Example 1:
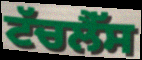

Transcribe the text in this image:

ਟੱਚਲੈੱਸ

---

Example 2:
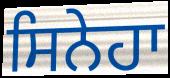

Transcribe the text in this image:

ਸਿਨੇਹਾ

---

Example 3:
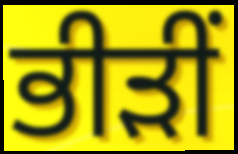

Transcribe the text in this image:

ਭੀੜੀਂ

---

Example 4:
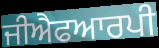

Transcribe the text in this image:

ਜੀਐਫਆਰਪੀ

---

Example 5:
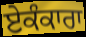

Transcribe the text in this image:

ਏਕੰਕਾਰਾ